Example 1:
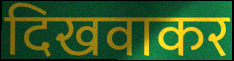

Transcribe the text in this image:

दिखवाकर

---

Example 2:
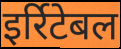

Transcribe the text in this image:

इर्रिटेबल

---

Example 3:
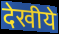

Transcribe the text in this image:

देखीये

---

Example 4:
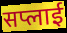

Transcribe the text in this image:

सप्लाई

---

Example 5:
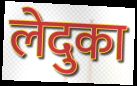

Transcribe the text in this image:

लेदुका